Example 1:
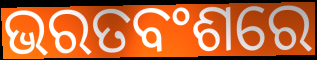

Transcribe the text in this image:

ଭରତବଂଶରେ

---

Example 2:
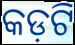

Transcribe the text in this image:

କଡ଼ଟି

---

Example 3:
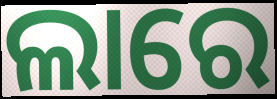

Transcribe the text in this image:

ଲାରେ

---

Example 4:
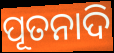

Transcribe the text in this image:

ପୂତନାଦି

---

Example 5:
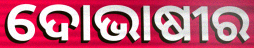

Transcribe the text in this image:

ଦୋଭାଷୀର